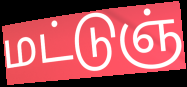
மட்டுஞ்